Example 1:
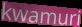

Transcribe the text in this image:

kwamuri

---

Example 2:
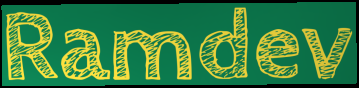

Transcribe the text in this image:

Ramdev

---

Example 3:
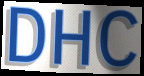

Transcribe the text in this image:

DHC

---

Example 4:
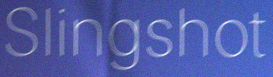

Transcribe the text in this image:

Slingshot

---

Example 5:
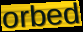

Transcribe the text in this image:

orbed